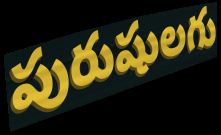
పురుషులగు